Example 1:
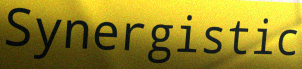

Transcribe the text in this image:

Synergistic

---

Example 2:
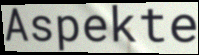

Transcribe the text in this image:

Aspekte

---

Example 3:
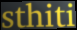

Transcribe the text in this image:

sthiti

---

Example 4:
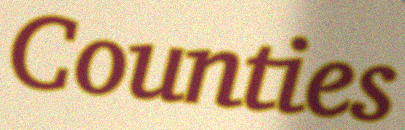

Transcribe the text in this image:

Counties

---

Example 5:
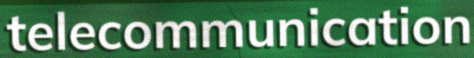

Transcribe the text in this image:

telecommunication